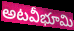
అటవీభూమి